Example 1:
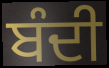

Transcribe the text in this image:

ਬੰਦੀ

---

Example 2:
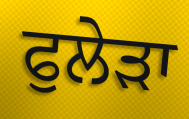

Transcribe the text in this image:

ਫੁਲੇੜਾ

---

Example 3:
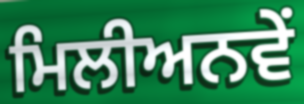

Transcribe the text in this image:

ਮਿਲੀਅਨਵੇਂ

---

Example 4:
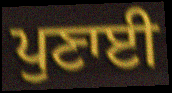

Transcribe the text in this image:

ਪੁਣਾਈ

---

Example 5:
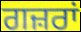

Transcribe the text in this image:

ਗਜ਼ਰਾਂ